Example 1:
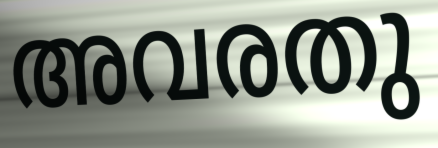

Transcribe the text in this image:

അവരതു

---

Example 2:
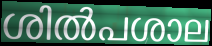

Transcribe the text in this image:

ശിൽപശാല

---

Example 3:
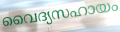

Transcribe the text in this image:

വൈദ്യസഹായം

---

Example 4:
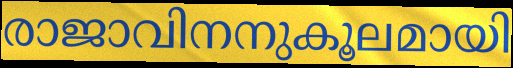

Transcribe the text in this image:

രാജാവിനനുകൂലമായി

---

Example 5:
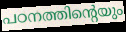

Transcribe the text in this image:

പഠനത്തിന്റെയും